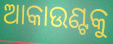
ଆକାଉଣ୍ଟକୁ